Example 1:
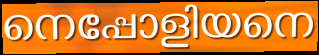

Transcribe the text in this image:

നെപ്പോളിയനെ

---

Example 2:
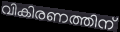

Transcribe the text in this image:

വികിരണത്തിന്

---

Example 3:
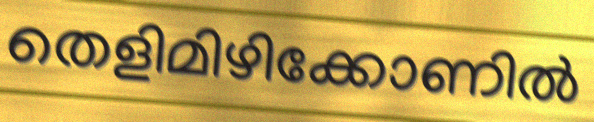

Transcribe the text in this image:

തെളിമിഴിക്കോണിൽ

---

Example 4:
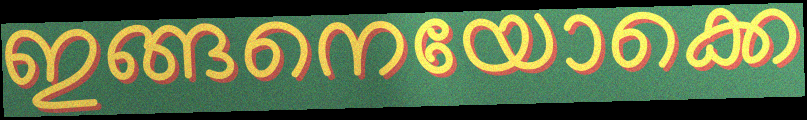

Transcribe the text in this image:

ഇങ്ങനെയോക്കെ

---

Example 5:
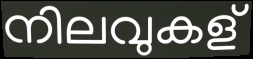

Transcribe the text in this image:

നിലവുകള്